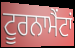
ਟੂਰਨਾਮੈਂਟਾਂ